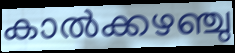
കാൽക്കഴഞ്ചു